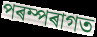
পৰম্পৰাগত